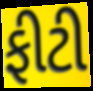
ફીટી